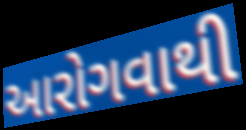
આરોગવાથી